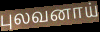
புலவனாய்